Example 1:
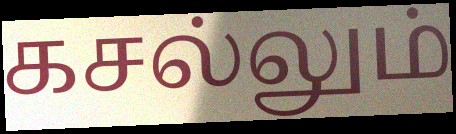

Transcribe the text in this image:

கசல்லும்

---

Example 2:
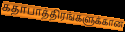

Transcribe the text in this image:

கதாபாத்திரங்களுக்கான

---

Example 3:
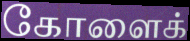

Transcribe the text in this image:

கோளைக்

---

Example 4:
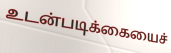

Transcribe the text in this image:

உடன்படிக்கையைச்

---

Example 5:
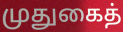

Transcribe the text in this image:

முதுகைத்